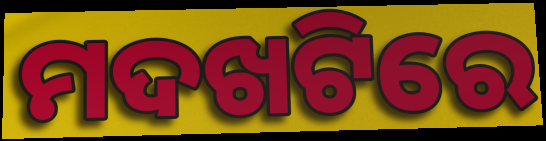
ମଦଖଟିରେ